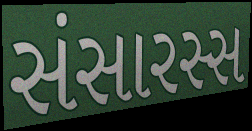
સંસારસ્સ